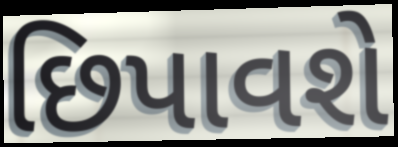
છિપાવશે